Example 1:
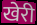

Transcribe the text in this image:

खेरी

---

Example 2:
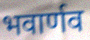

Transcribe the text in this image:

भवार्णव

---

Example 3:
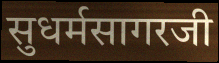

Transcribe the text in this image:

सुधर्मसागरजी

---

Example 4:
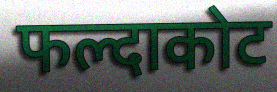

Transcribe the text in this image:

फल्दाकोट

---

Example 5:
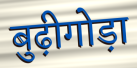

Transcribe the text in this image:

बुढ़ीगोड़ा